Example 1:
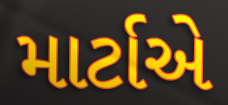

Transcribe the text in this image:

માર્ટાએ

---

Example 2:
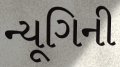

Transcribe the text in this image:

ન્યૂગિની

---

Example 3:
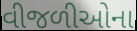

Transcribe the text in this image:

વીજળીઓના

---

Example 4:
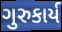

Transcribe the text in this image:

ગુરુકાર્ય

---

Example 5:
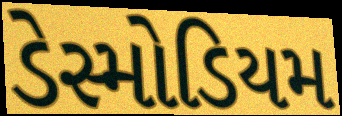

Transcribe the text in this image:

ડેસ્મોડિયમ